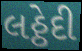
લઠ્ઠેદી